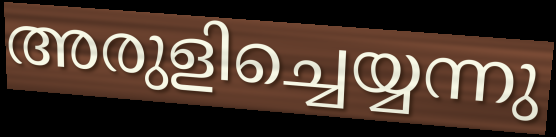
അരുളിച്ചെയ്യന്നു